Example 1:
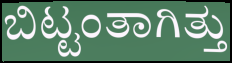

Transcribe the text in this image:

ಬಿಟ್ಟಂತಾಗಿತ್ತು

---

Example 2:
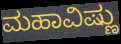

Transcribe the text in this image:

ಮಹಾವಿಷ್ಣು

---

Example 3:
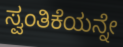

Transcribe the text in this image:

ಸ್ವಂತಿಕೆಯನ್ನೇ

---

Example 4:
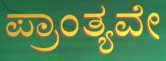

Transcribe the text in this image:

ಪ್ರಾಂತ್ಯವೇ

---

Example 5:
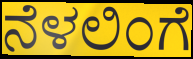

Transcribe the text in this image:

ನೆಳಲಿಂಗೆ